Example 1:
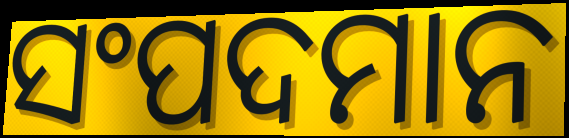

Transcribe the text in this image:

ସଂପଦମାନ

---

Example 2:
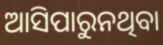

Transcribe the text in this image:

ଆସିପାରୁନଥିବା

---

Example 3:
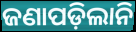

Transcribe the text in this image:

ଜଣାପଡ଼ିଲାନି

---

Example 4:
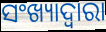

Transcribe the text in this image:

ସଂଖ୍ୟାଦ୍ଵାରା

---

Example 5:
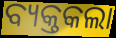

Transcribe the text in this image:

ବ୍ୟକ୍ତକଲା